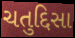
ચતુદ્દિસા